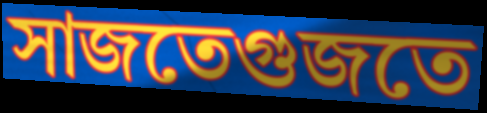
সাজতেগুজতে